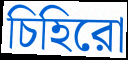
চিহিরো